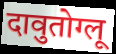
दावुतोग्लू